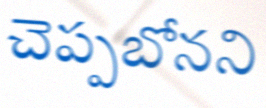
చెప్పబోనని